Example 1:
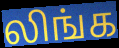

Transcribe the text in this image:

லிங்க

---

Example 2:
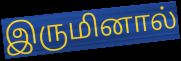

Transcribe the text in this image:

இருமினால்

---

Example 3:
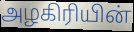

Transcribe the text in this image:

அழகிரியின்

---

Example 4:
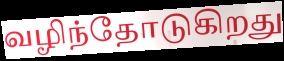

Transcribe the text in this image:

வழிந்தோடுகிறது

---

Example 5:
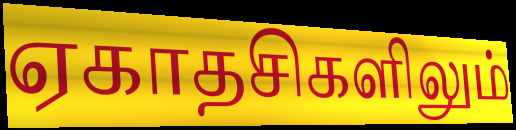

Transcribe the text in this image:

ஏகாதசிகளிலும்